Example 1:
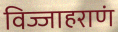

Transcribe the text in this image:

विज्जाहराणं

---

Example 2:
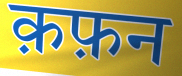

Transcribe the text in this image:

क़फ़न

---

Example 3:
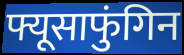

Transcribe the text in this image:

फ्यूसाफुंगिन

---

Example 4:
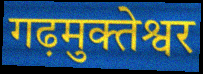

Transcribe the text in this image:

गढ़मुक्तेश्वर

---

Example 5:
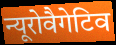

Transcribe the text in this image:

न्यूरोवैगेटिव